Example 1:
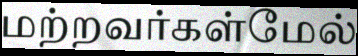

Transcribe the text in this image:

மற்றவர்கள்மேல்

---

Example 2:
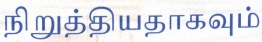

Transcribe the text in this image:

நிறுத்தியதாகவும்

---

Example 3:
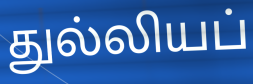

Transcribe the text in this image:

துல்லியப்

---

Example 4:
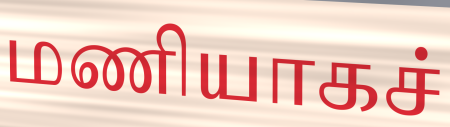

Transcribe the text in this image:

மணியாகச்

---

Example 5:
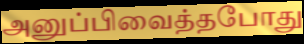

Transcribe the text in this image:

அனுப்பிவைத்தபோது